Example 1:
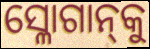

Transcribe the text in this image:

ସ୍ଳୋଗାନ୍‌କୁ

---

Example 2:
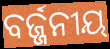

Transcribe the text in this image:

ବର୍ଜ୍ଜନୀୟ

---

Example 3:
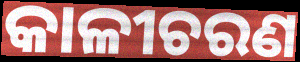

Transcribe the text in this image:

କାଳୀଚରଣ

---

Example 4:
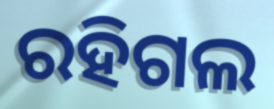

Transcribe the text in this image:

ରହିଗଲ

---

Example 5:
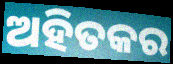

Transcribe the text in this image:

ଅହିତକର